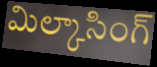
మిల్కాసింగ్